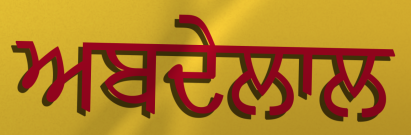
ਅਬਦੇਲਾਲ